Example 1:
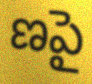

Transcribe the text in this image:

ణపై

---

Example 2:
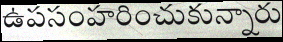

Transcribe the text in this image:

ఉపసంహరించుకున్నారు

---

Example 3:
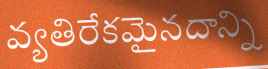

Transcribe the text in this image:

వ్యతిరేకమైనదాన్ని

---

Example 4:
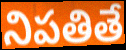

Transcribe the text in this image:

నిపతితే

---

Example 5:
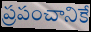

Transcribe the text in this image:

ప్రపంచానికే